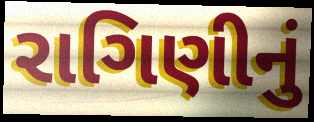
રાગિણીનું